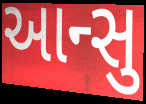
આન્સુ